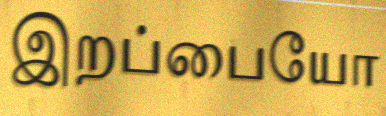
இறப்பையோ